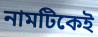
নামটিকেই